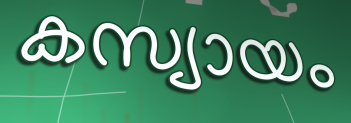
കസ്യായം